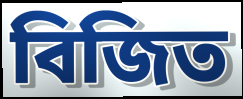
বিজিত